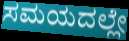
ಸಮಯದಲ್ಲೇ